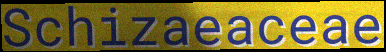
Schizaeaceae